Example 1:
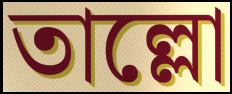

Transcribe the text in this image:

তাল্লো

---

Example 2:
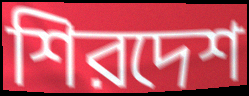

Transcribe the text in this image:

শিরদেশ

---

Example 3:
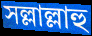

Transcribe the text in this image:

সল্লাল্লাহু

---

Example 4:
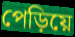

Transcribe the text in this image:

পেড়িয়ে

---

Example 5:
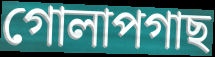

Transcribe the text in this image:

গোলাপগাছ